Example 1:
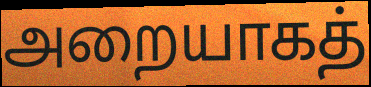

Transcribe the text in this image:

அறையாகத்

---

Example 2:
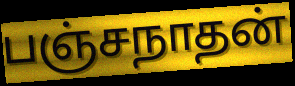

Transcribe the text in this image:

பஞ்சநாதன்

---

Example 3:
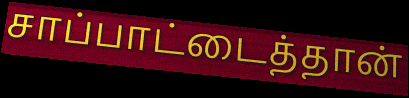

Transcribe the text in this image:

சாப்பாட்டைத்தான்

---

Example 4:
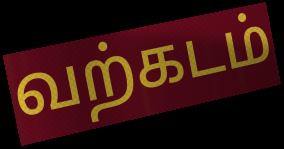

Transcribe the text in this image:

வற்கடம்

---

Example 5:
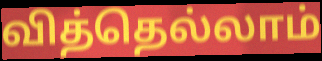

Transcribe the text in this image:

வித்தெல்லாம்